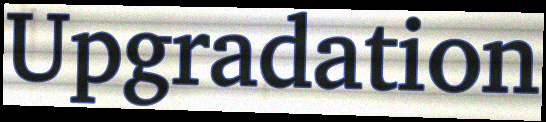
Upgradation